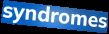
syndromes